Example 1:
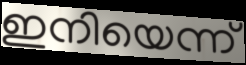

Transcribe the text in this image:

ഇനിയെന്ന്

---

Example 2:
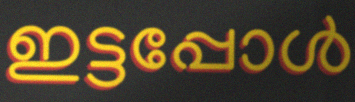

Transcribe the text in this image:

ഇട്ടപ്പോൾ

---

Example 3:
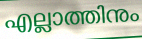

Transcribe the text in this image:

എല്ലാത്തിനും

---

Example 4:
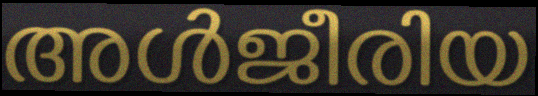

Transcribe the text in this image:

അൾജീരിയ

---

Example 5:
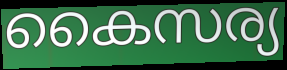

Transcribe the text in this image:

കൈസര്യ